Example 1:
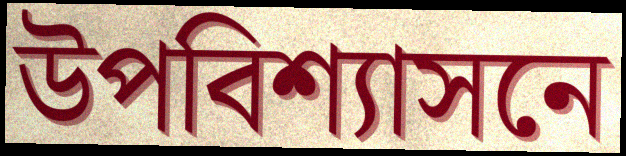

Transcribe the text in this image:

উপবিশ্যাসনে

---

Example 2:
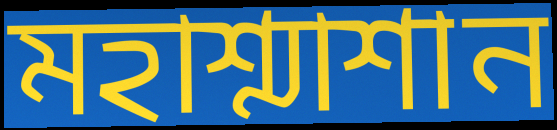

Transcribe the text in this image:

মহাশ্মাশান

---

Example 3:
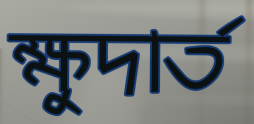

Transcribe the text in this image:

ক্ষুদার্ত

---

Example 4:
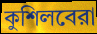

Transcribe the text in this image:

কুশিলবেরা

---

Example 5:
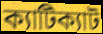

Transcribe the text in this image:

ক্যাটিক্যাট